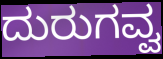
ದುರುಗವ್ವ